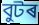
বুটৰ